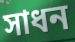
সাধন